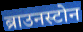
ब्राउनस्टोन